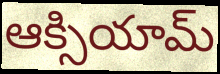
ఆక్సియామ్